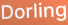
Dorling